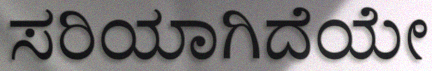
ಸರಿಯಾಗಿದೆಯೇ